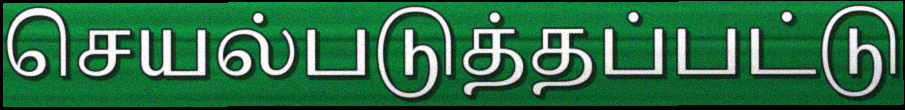
செயல்படுத்தப்பட்டு